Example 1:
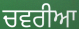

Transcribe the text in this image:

ਚਵਰੀਆ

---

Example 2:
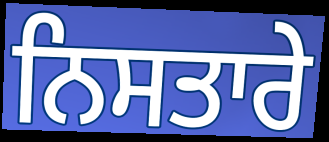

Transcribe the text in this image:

ਨਿਸਤਾਰੇ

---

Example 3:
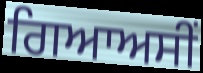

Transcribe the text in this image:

ਗਿਆਅਸੀਂ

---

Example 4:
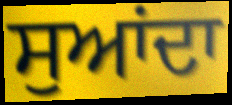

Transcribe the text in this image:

ਸੁਆਂਦਾ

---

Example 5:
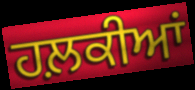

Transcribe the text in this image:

ਹਲ਼ਕੀਆਂ